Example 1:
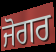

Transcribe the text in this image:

ਜੋਗਰ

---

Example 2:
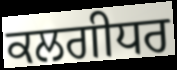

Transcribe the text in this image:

ਕਲਗੀਧਰ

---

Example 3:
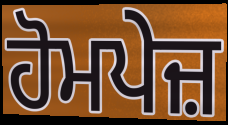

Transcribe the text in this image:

ਹੋਮਪੇਜ਼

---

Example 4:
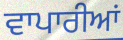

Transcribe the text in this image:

ਵਾਪਾਰੀਆਂ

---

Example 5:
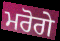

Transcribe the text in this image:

ਮਰੋਗੇ